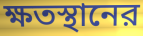
ক্ষতস্থানের